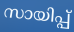
സായിപ്പ്